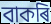
বাকৰি